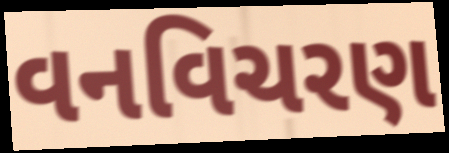
વનવિચરણ